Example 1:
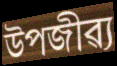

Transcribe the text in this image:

উপজীৱ্য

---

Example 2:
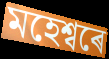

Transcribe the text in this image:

মহেশ্বৰে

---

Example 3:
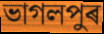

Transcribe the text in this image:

ভাগলপুৰ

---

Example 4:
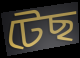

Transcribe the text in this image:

টেছ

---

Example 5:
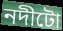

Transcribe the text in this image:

নদীটো